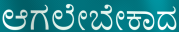
ಆಗಲೇಬೇಕಾದ